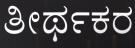
ತೀರ್ಥಕರ